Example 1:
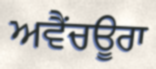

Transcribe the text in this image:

ਅਵੈਂਚਊਰਾ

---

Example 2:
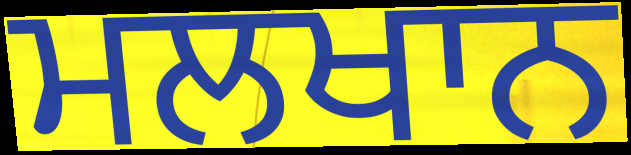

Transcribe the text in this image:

ਮਲਖਾਨ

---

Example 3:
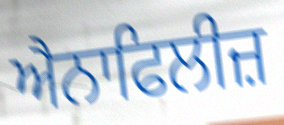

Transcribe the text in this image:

ਐਨਾਫਿਲੀਜ਼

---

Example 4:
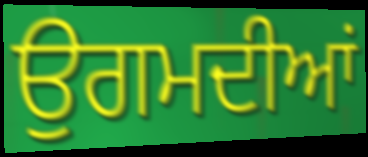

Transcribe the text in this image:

ਉਗਮਦੀਆਂ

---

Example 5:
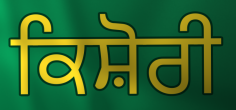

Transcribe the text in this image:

ਕਿਸ਼ੋਰੀ